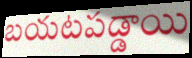
బయటపడ్డాయి